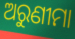
ଅରୁଣୀମା